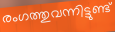
രംഗത്തുവന്നിട്ടുണ്ട്